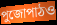
পুজোপাঠও